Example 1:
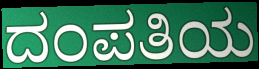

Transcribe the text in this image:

ದಂಪತಿಯ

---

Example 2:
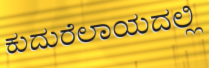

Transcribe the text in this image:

ಕುದುರೆಲಾಯದಲ್ಲಿ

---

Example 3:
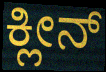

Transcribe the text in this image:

ಕ್ಲೀನ್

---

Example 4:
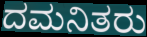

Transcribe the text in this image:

ದಮನಿತರು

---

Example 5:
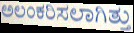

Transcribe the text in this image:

ಅಲಂಕರಿಸಲಾಗಿತ್ತು